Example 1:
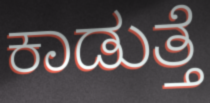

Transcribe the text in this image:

ಕಾಡುತ್ತೆ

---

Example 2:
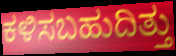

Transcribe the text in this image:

ಕಳಿಸಬಹುದಿತ್ತು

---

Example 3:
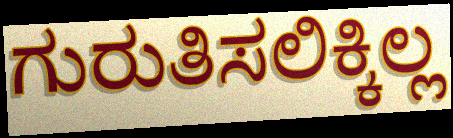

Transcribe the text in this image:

ಗುರುತಿಸಲಿಕ್ಕಿಲ್ಲ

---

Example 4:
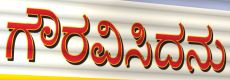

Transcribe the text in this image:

ಗೌರವಿಸಿದನು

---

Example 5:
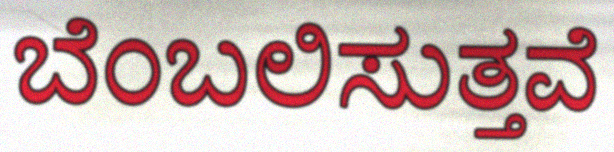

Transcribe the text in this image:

ಬೆಂಬಲಿಸುತ್ತವೆ